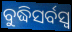
ବୁଦ୍ଧିସର୍ବସ୍ୱ